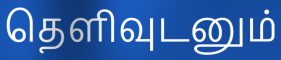
தெளிவுடனும்